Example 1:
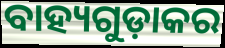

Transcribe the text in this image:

ବାହ୍ୟଗୁଡ଼ାକର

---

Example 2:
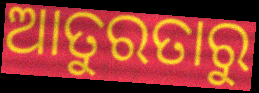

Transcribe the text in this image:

ଆତୁରତାରୁ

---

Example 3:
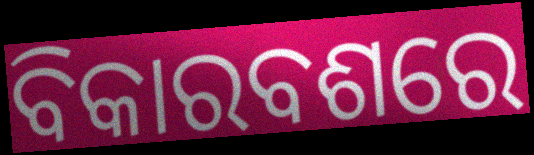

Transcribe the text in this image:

ବିକାରବଶରେ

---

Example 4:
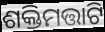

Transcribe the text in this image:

ଶକ୍ତିମତ୍ତାଟି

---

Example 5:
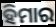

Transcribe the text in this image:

ହିମାର